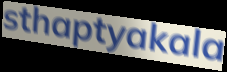
sthaptyakala